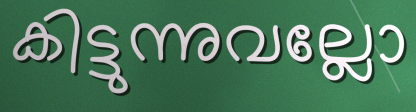
കിട്ടുന്നുവല്ലോ